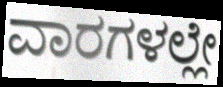
ವಾರಗಳಲ್ಲೇ